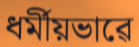
ধৰ্মীয়ভাৱে